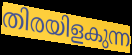
തിരയിളകുന്ന